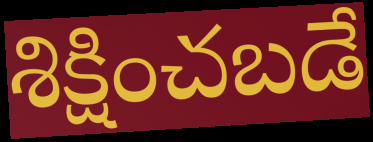
శిక్షించబడే